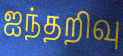
ஐந்தறிவு